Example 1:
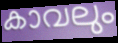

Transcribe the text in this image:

കാവലും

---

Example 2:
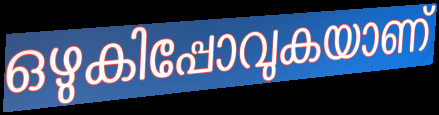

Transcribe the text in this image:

ഒഴുകിപ്പോവുകയാണ്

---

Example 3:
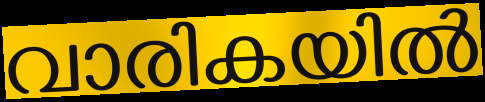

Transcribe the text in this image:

വാരികയിൽ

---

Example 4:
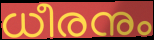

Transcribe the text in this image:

ധീരനും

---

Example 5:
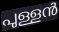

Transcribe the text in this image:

പുള്ളൻ